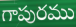
గాపురము